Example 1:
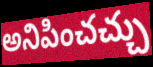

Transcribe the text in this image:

అనిపించచ్చు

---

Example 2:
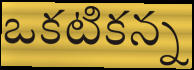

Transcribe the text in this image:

ఒకటికన్న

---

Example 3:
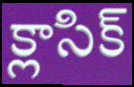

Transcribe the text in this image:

క్లాసిక్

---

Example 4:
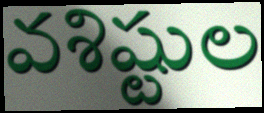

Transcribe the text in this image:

వశిష్టుల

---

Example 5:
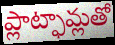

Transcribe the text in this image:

ప్లాట్ఫామ్లతో